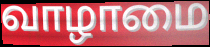
வாழாமை